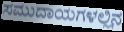
ಸಮುದಾಯಗಳಲ್ಲಿನ